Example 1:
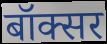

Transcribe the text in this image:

बॉक्सर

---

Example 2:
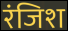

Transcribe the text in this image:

रंजिश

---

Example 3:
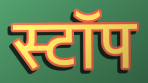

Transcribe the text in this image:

स्टॉप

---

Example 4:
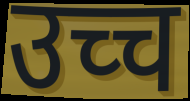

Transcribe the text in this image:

उच्च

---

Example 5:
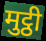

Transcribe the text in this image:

मुट्ठी